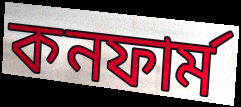
কনফাৰ্ম